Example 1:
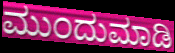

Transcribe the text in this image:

ಮುಂದುಮಾಡಿ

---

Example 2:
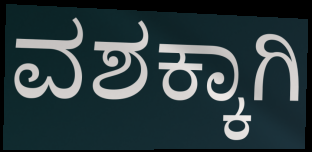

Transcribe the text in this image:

ವಶಕ್ಕಾಗಿ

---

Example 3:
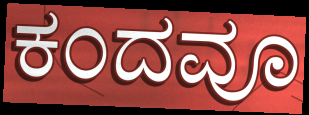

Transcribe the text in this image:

ಕಂದವೂ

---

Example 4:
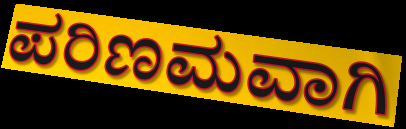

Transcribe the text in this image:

ಪರಿಣಮವಾಗಿ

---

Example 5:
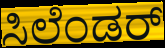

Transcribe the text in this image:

ಸಿಲೆಂಡರ್